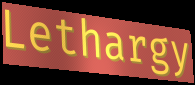
Lethargy